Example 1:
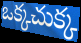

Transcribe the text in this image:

ఒక్కచుక్క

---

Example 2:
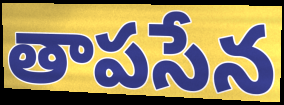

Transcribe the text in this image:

తాపసేన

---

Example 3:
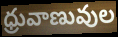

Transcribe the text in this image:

ధ్రువాణువుల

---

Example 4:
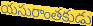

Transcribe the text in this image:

యసురాంతకుడు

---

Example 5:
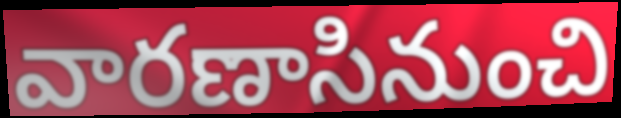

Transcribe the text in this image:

వారణాసినుంచి